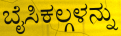
ಬೈಸಿಕಲ್ಗಳನ್ನು